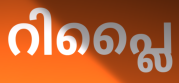
റിപ്ലൈ